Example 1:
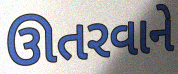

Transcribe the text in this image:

ઊતરવાને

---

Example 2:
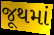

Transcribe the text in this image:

જૂથમાં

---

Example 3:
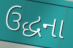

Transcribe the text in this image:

ઉદ્ધના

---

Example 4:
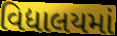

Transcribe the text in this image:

વિદ્યાલયમાં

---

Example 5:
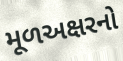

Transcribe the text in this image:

મૂળઅક્ષરનો